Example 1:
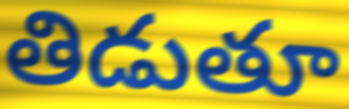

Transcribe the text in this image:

తిడుతూ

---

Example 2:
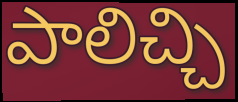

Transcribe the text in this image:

పాలిచ్చి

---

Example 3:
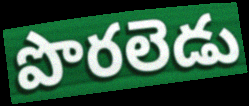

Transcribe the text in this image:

పొరలెడు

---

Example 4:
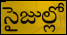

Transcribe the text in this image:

సైజుల్లో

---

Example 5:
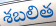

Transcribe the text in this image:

శబలిత